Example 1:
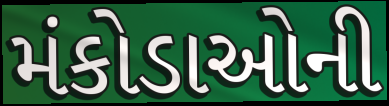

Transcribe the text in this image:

મંકોડાઓની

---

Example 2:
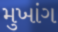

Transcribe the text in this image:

મુખાંગ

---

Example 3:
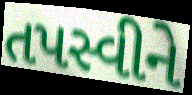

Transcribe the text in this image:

તપસ્વીને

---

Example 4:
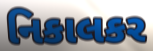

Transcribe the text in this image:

નિકાલકર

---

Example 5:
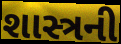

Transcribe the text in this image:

શાસ્ત્રની